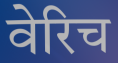
वेरिच